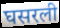
घसरली